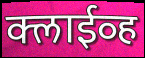
क्लाईव्ह